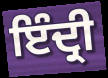
ਇੰਦ੍ਰੀ